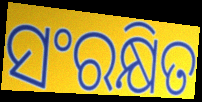
ସଂରକ୍ଷିତ